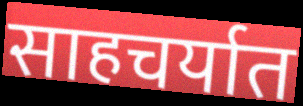
साहचर्यात